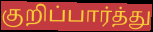
குறிப்பார்த்து